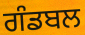
ਗੰਡਬਲ